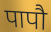
पापौ